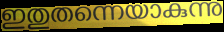
ഇതുതന്നെയാകുന്നു